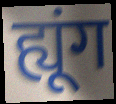
ह्यूंग